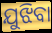
ଯୁଝିବା